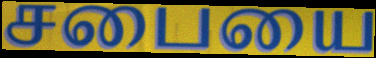
சபையை